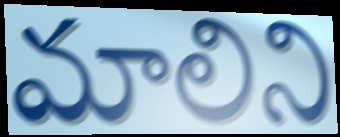
మాలిని